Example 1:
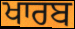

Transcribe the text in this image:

ਖਾਰਬ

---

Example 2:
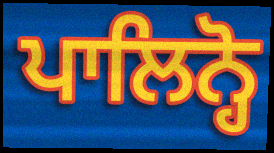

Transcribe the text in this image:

ਪਾਲਿਨ੍ਹੋ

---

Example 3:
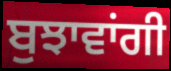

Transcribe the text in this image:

ਬੁਝਾਵਾਂਗੀ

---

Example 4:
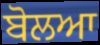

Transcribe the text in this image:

ਬੋਲਆ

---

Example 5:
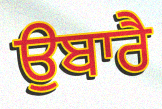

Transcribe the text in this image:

ਉਬਾਰੈ